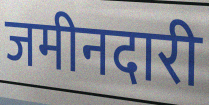
जमीनदारी